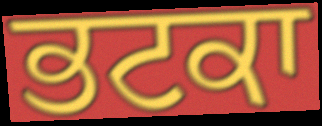
ਭਟਕਾ